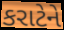
કરાટેને